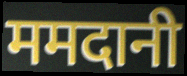
ममदानी